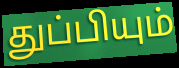
துப்பியும்